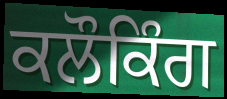
ਕਲੌਕਿੰਗ